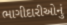
ભાગીદારીઓનું